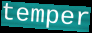
temper